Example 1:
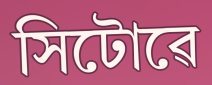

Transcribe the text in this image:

সিটোৱে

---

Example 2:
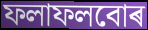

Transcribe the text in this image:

ফলাফলবোৰ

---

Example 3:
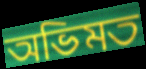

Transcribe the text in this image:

অভিমত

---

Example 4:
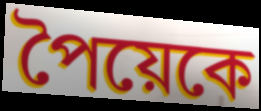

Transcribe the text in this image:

পৈয়েকে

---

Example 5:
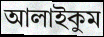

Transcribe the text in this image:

আলাইকুম